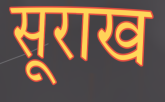
सूराख